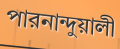
পারনান্দুয়ালী